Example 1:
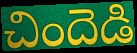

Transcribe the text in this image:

చిందెడి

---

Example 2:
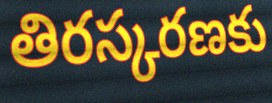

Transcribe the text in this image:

తిరస్కరణకు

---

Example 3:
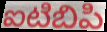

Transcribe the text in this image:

ఐటిబిపి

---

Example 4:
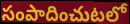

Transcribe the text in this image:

సంపాదించుటలో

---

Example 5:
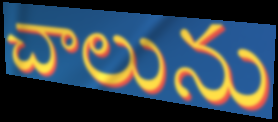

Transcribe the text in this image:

చాలును